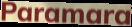
Paramara